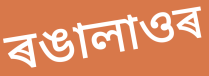
ৰঙালাওৰ